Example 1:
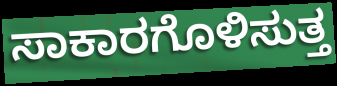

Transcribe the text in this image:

ಸಾಕಾರಗೊಳಿಸುತ್ತ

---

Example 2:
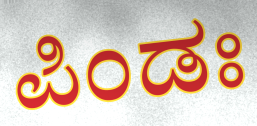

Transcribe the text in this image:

ಪಿಂಡಃ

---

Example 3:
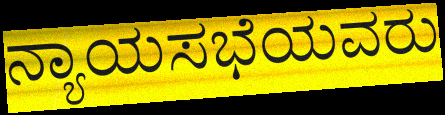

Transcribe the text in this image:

ನ್ಯಾಯಸಭೆಯವರು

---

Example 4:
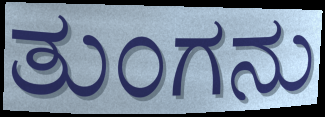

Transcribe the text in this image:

ತುಂಗನು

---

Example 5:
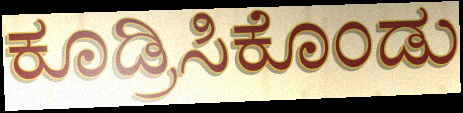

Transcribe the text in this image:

ಕೂಡ್ರಿಸಿಕೊಂಡು